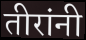
तीरांनी